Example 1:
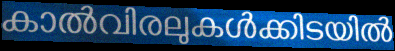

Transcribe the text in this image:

കാൽവിരലുകൾക്കിടയിൽ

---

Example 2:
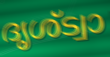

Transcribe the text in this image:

ദൃശ്ട്വാ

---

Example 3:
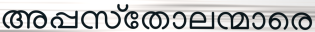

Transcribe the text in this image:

അപ്പസ്‌തോലന്മാരെ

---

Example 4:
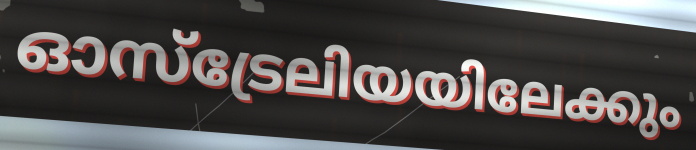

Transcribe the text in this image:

ഓസ്ട്രേലിയയിലേക്കും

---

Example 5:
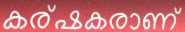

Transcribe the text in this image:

കര്ഷകരാണ്